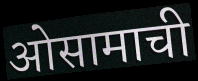
ओसामाची